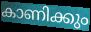
കാണിക്കും